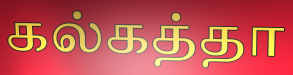
கல்கத்தா